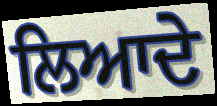
ਲਿਆਦੇ